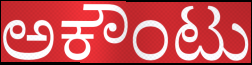
ಅಕೌಂಟು